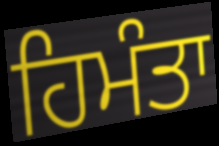
ਹਿਮੰਤਾ